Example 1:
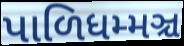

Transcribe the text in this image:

પાળિધમ્મઞ્ચ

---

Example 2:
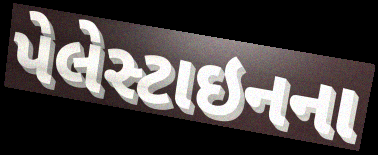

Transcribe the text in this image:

પેલેસ્ટાઇનના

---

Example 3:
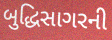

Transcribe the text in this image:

બુદ્ધિસાગરની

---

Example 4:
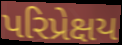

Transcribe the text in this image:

પરિપ્રેક્ષય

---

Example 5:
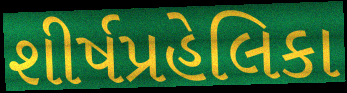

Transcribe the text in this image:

શીર્ષપ્રહેલિકા